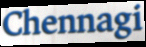
Chennagi